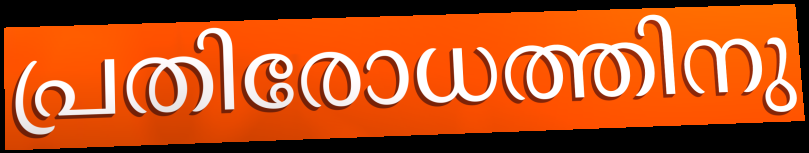
പ്രതിരോധത്തിനു